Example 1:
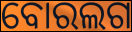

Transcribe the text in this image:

ବୋରଲଗ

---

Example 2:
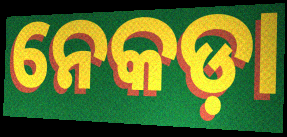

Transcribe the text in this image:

ନେକଡ଼ା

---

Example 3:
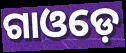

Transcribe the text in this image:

ଗାଓଡ଼େ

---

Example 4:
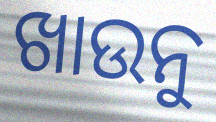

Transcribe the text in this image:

ଖାଉନୁ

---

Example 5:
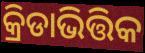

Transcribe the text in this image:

କ୍ରିଡାଭିତ୍ତିକ